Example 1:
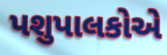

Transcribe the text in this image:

પશુપાલકોએ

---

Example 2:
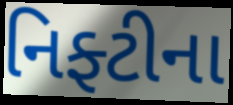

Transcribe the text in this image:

નિફ્ટીના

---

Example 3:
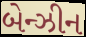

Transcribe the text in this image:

બેન્ઝીન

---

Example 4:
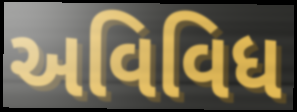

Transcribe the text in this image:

અવિવિધ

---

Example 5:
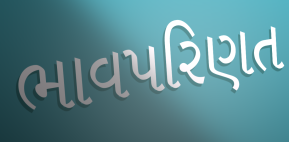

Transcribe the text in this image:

ભાવપરિણત